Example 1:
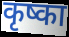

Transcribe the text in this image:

कृष्का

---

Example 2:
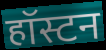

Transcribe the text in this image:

हॉस्टन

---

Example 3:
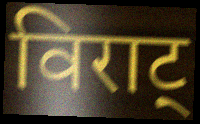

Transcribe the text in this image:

विराट्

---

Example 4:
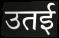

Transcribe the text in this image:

उतई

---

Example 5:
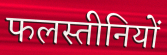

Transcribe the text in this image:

फलस्तीनियों